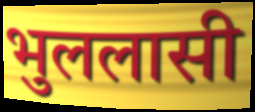
भुललासी